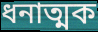
ধনাত্মক